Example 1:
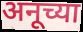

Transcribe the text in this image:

अनूच्या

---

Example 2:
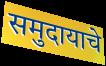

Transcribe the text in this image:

समुदायाचे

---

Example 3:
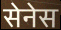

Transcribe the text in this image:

सेनेस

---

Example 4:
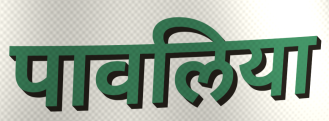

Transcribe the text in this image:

पावलिया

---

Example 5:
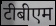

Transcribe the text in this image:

टीबीएम